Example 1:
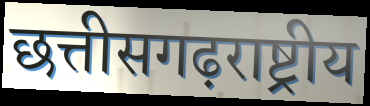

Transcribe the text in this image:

छत्तीसगढ़राष्ट्रीय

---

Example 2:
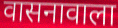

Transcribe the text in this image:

वासनावाला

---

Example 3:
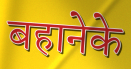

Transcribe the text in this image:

बहानेके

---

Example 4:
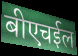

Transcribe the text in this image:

बीएचईल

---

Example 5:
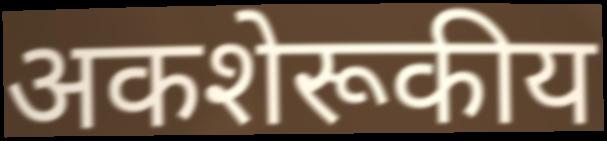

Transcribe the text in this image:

अकशेरूकीय